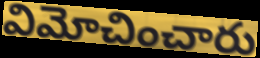
విమోచించారు